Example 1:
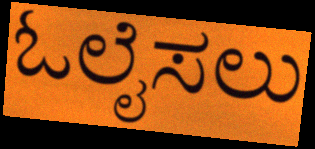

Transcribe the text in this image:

ಓಲೈಸಲು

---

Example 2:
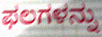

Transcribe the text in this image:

ಫಲಗಳನ್ನು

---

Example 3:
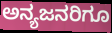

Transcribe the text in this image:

ಅನ್ಯಜನರಿಗೂ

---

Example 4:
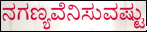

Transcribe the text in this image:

ನಗಣ್ಯವೆನಿಸುವಷ್ಟು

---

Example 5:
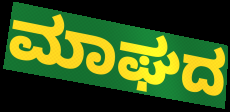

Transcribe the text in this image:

ಮಾಘದ